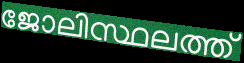
ജോലിസ്ഥലത്ത്